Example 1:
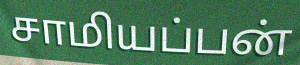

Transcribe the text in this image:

சாமியப்பன்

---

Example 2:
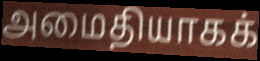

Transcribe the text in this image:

அமைதியாகக்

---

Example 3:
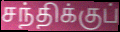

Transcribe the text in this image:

சந்திக்குப்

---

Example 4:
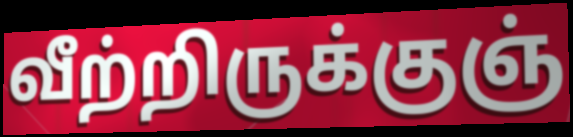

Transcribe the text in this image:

வீற்றிருக்குஞ்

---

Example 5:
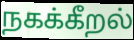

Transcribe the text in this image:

நகக்கீறல்